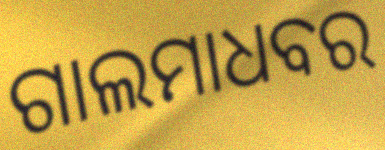
ଗାଲମାଧବର